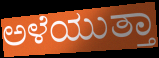
ಅಳೆಯುತ್ತಾ